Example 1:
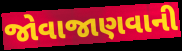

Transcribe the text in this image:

જોવાજાણવાની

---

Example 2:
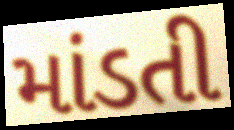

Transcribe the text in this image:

માંડતી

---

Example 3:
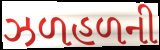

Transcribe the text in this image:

ઝળહળની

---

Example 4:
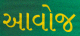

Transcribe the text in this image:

આવોજ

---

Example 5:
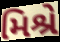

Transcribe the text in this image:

મિશ્રે